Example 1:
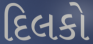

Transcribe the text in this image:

દિલકો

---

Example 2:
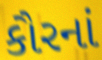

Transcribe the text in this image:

કૌરનાં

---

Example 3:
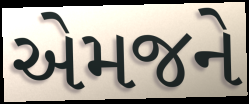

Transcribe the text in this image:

એમજને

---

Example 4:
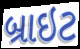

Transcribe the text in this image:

બ્રાઇટ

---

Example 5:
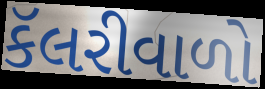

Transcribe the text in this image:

કૅલરીવાળો